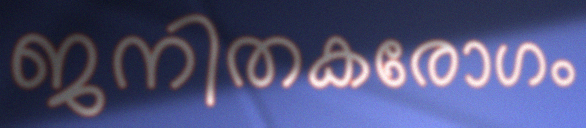
ജനിതകരോഗം